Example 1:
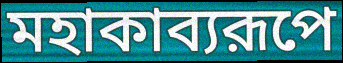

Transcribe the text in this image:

মহাকাব্যরূপে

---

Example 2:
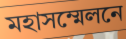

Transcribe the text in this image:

মহাসম্মেলনে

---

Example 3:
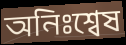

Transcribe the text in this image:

অনিঃশ্বেষ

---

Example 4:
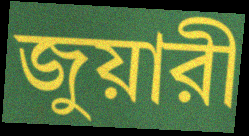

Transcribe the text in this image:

জুয়ারী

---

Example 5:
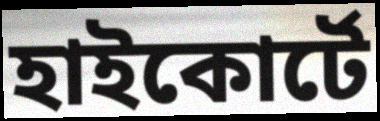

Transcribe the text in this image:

হাইকোর্টে